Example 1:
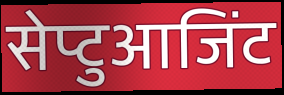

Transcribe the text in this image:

सेप्टुआजिंट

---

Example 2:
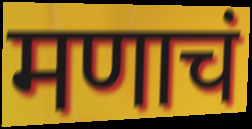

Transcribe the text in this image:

मणाचं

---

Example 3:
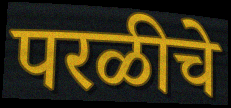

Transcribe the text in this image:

परळीचे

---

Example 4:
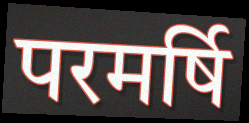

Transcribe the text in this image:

परमर्षि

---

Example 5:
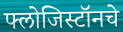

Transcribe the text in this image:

फ्लोजिस्टॉनचे